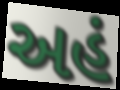
અહં